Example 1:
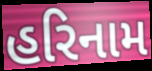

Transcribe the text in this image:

હરિનામ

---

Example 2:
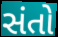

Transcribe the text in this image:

સંતો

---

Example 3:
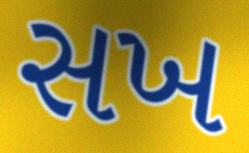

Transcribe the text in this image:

સખ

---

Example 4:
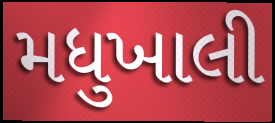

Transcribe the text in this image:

મધુખાલી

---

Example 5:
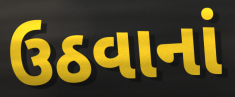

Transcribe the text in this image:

ઉઠવાનાં